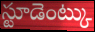
స్టూడెంట్కు